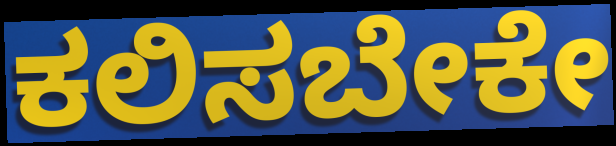
ಕಲಿಸಬೇಕೇ